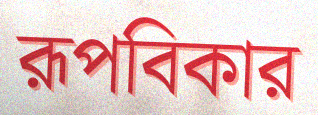
রূপবিকার